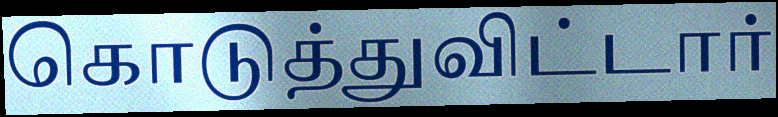
கொடுத்துவிட்டார்